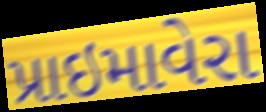
પ્રાઇમાવેરા